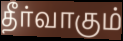
தீர்வாகும்